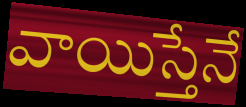
వాయిస్తేనే